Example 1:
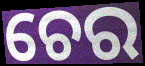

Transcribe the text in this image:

ଚେର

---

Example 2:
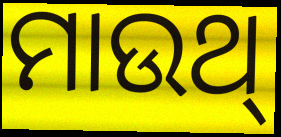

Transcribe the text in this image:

ମାଉଥ୍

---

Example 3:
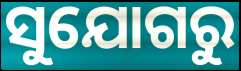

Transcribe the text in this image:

ସୁଯୋଗରୁ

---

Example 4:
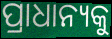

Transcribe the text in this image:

ପ୍ରାଧାନ୍ୟକୁ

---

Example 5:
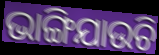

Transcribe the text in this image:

ଭାଙ୍ଗିଯାଉଚି